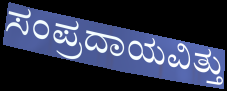
ಸಂಪ್ರದಾಯವಿತ್ತು